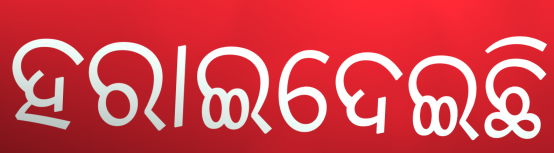
ହରାଇଦେଇଛି